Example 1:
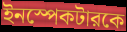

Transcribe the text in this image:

ইনস্পেকটারকে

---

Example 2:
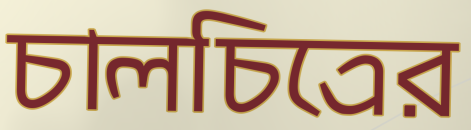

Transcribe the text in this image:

চালচিত্রের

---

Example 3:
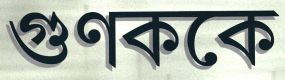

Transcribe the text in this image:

গুণককে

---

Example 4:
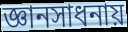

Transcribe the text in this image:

জ্ঞানসাধনায়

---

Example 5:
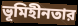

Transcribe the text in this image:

ভূমিহীনতার